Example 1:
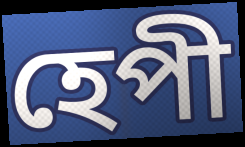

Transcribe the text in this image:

হেপী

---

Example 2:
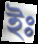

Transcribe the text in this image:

ইঃ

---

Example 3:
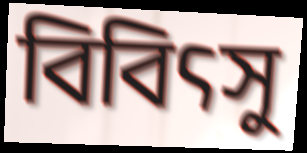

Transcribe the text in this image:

বিবিৎসু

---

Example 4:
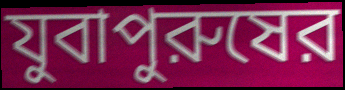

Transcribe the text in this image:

যুবাপুরুষের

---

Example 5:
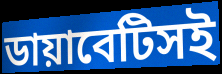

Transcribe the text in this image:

ডায়াবেটিসই